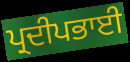
ਪ੍ਰਦੀਪਭਾਈ